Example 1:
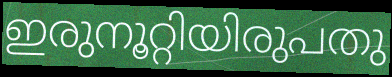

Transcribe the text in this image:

ഇരുനൂറ്റിയിരുപതു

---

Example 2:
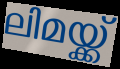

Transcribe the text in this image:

ലിമയ്ക്ക്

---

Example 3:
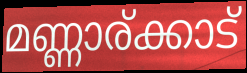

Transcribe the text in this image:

മണ്ണാര്ക്കാട്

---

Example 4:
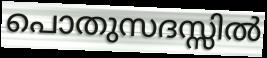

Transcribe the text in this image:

പൊതുസദസ്സിൽ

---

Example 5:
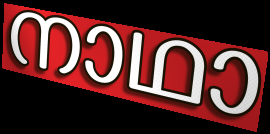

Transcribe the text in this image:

നാഥാ